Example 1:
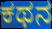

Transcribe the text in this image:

ಕಥನ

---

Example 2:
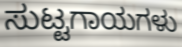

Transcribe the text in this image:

ಸುಟ್ಟಗಾಯಗಳು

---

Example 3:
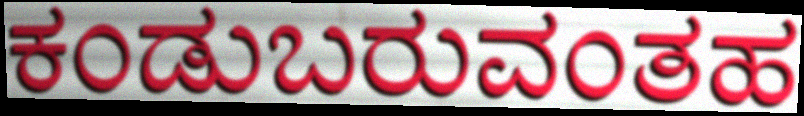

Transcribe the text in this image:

ಕಂಡುಬರುವಂತಹ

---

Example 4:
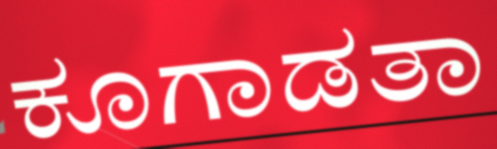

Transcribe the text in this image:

ಕೂಗಾಡತಾ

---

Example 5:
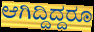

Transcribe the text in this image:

ಆಗಿದ್ದಿದ್ದರೂ